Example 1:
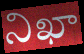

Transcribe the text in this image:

నిఖా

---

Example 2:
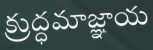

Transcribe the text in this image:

క్రుద్ధమాజ్ఞాయ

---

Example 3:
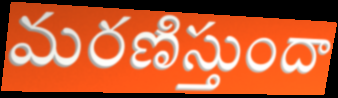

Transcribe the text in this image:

మరణిస్తుందా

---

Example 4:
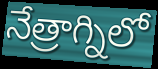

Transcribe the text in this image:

నేత్రాగ్నిలో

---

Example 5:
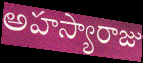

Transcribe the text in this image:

అహస్యారాజు